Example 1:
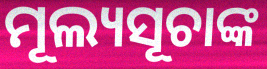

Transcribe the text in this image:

ମୂଲ୍ୟସୂଚାଙ୍କ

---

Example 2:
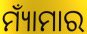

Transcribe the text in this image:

ମ୍ୟାଁମାର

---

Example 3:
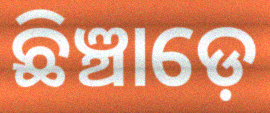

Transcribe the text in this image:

ଛିଞ୍ଚାଡ଼େ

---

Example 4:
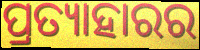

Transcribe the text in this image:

ପ୍ରତ୍ୟାହାରର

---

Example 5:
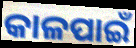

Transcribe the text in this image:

କାଳପାଇଁ